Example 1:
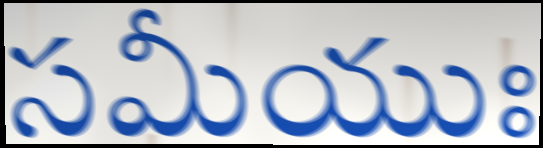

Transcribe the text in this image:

సమీయుః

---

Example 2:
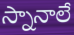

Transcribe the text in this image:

స్నానాలే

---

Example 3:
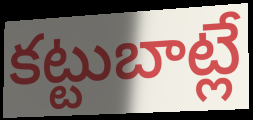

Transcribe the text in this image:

కట్టుబాట్లే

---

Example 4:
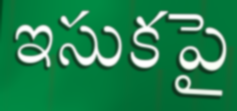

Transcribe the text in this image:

ఇసుకపై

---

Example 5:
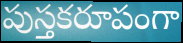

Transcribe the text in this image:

పుస్తకరూపంగా